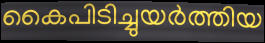
കൈപിടിച്ചുയർത്തിയ